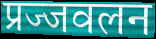
प्रज्‍जवलन